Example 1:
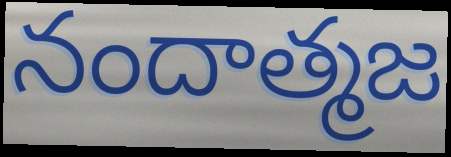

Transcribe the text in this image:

నందాత్మజ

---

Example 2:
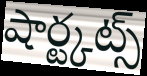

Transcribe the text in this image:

షార్ట్కట్స్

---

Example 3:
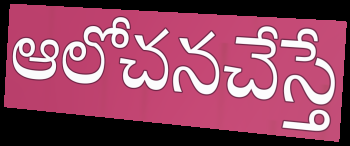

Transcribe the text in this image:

ఆలోచనచేస్తే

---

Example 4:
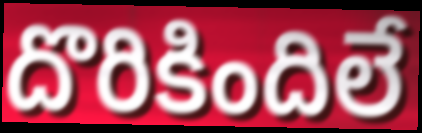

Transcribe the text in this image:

దొరికిందిలే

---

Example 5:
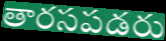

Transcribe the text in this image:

తారసపడరు